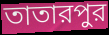
তাতারপুর